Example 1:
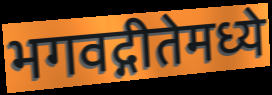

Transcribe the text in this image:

भगवद्गीतेमध्ये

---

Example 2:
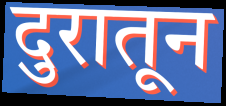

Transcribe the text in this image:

दुरातून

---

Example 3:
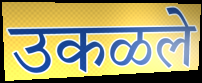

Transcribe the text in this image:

उकळले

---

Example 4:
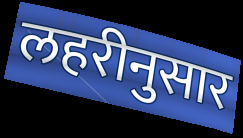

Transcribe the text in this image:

लहरीनुसार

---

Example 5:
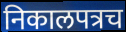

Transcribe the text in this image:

निकालपत्रच